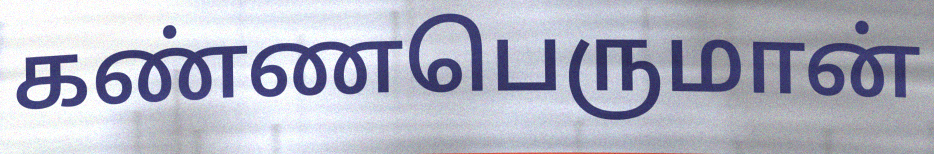
கண்ணபெருமான்